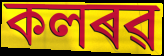
কলৰৱ